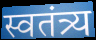
स्वतंत्र्य